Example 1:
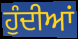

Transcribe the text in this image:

ਹੁੰਦੀਆਂ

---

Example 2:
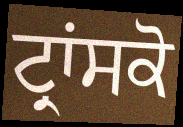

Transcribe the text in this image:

ਟ੍ਰਾਂਸਕੋ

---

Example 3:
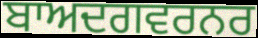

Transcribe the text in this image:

ਬਾਅਦਗਵਰਨਰ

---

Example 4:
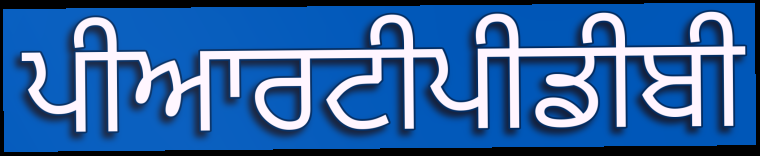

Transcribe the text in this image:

ਪੀਆਰਟੀਪੀਡੀਬੀ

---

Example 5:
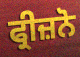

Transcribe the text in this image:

ਫ੍ਰੀਜ਼ਨੋ